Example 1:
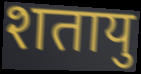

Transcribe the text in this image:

शतायु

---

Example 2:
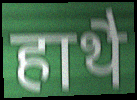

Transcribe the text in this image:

हाथै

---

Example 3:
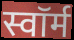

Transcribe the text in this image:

स्वॉर्म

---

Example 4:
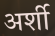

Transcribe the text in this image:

अर्शी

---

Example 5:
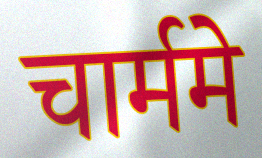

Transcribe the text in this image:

चार्ममे